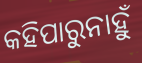
କହିପାରୁନାହୁଁ